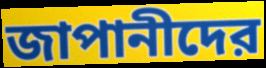
জাপানীদের